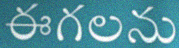
ఈగలను